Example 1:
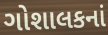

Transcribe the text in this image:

ગોશાલકનાં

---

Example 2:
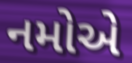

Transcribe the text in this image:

નમોએ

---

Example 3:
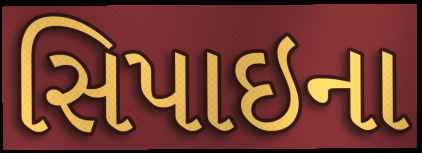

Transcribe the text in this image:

સિપાઇના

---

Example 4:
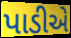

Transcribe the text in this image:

પાડીએ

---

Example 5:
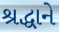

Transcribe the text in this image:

શ્રદ્ધાને